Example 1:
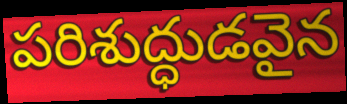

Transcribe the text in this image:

పరిశుద్ధుడవైన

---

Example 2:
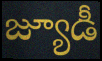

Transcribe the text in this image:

జ్యూడీ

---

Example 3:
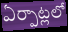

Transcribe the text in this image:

ఏర్పాట్లలో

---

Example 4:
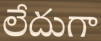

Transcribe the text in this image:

లేదుగా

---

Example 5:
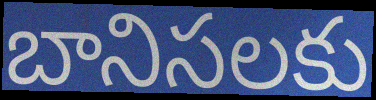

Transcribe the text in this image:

బానిసలకు